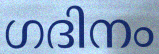
ഗദിനം